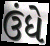
ઉંધે